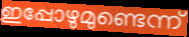
ഇപ്പോഴുമുണ്ടെന്ന്